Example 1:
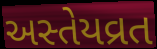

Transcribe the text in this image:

અસ્તેયવ્રત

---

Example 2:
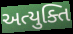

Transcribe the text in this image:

અત્યુક્તિ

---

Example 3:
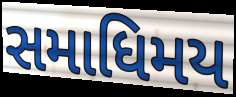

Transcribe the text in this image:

સમાધિમય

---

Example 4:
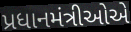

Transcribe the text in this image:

પ્રધાનમંત્રીઓએ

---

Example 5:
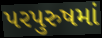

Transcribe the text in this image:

પરપુરુષમાં